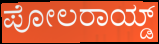
ಪೋಲರಾಯ್ಡ್